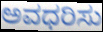
ಅವಧರಿಸು